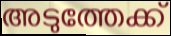
അടുത്തേക്ക്